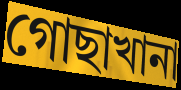
গোছাখানা